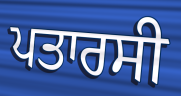
ਪਤਾਰਸੀ